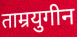
ताम्रयुगीन